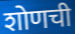
शोणची